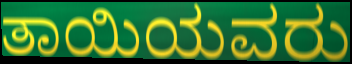
ತಾಯಿಯವರು